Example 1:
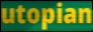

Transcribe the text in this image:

utopian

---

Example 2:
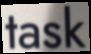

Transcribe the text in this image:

task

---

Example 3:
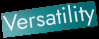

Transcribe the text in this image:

Versatility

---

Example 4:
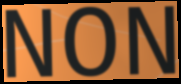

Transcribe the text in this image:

NON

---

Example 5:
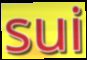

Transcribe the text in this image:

sui